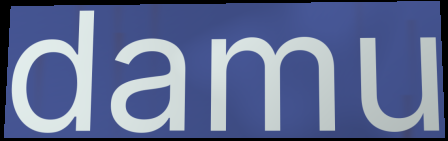
damu